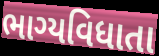
ભાગ્યવિધાતા